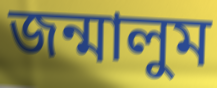
জন্মালুম